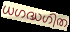
ധഗദ്ധഗിത